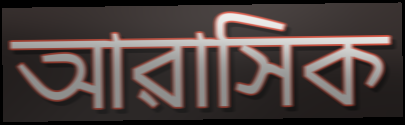
আৱাসিক